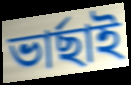
ভাৰ্ছাই